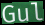
Gul